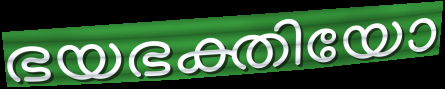
ഭയഭക്തിയോ